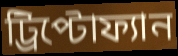
ট্রিপ্টোফ্যান